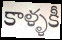
కాళ్ళకీ